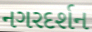
નગરદર્શન